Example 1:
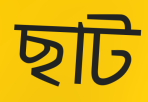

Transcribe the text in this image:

ছাট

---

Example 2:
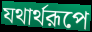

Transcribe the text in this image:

যথার্থরূপে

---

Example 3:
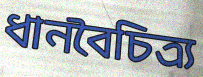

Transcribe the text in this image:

ধানবৈচিত্র্য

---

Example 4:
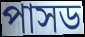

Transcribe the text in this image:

পাসড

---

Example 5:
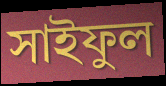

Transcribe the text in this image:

সাইফুল